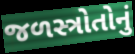
જળસ્ત્રોતોનું